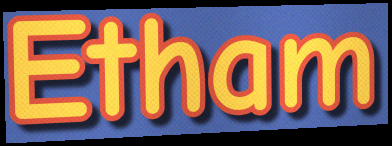
Etham